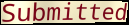
Submitted